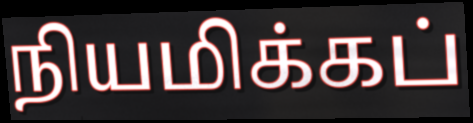
நியமிக்கப்